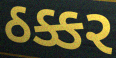
ઠક્કર